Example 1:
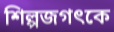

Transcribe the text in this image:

শিল্পজগৎকে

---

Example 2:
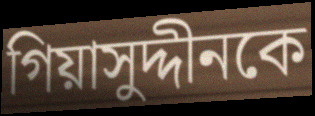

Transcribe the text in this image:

গিয়াসুদ্দীনকে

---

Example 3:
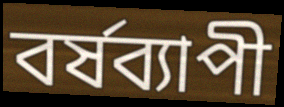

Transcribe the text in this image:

বর্ষব্যাপী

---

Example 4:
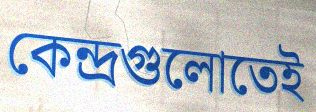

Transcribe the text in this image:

কেন্দ্রগুলোতেই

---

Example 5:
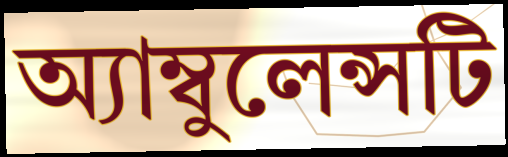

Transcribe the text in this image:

অ্যাম্বুলেন্সটি